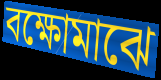
বক্ষোমাঝে